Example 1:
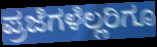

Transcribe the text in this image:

ಪ್ರಜೆಗಳೆಲ್ಲರಿಗೂ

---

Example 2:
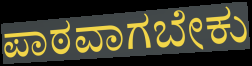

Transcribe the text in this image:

ಪಾಠವಾಗಬೇಕು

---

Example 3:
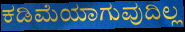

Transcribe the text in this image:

ಕಡಿಮೆಯಾಗುವುದಿಲ್ಲ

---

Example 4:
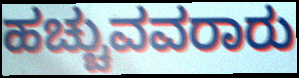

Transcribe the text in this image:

ಹಚ್ಚುವವರಾರು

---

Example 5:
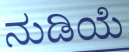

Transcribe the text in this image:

ನುಡಿಯೆ